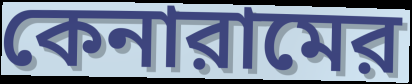
কেনারামের